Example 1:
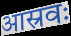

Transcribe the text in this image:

आस्रवः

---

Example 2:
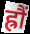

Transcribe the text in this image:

ह्रौं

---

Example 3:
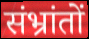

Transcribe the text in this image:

संभ्रांतों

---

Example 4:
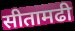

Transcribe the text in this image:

सीतामढी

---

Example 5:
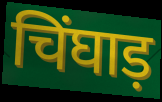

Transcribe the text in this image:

चिंघाड़